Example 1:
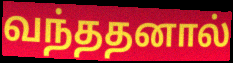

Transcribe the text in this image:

வந்ததனால்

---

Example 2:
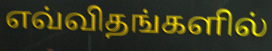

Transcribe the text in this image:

எவ்விதங்களில்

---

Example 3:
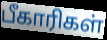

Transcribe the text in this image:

பீகாரிகள்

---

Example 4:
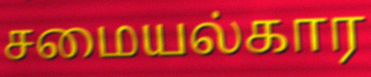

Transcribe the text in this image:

சமையல்கார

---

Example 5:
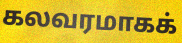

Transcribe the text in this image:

கலவரமாகக்